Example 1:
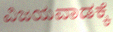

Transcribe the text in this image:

ವಿಜಯವಾಡಕ್ಕೆ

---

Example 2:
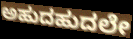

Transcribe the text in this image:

ಅಹುದಹುದಲೇ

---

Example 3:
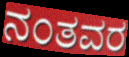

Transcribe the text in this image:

ನಂತವರ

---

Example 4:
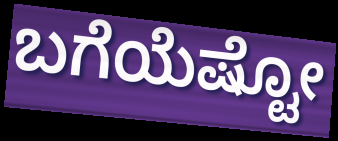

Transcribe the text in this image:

ಬಗೆಯೆಷ್ಟೋ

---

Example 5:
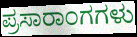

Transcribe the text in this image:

ಪ್ರಸಾರಾಂಗಗಳು